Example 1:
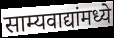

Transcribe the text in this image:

साम्यवाद्यांमध्ये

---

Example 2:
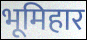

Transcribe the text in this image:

भूमिहार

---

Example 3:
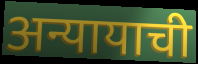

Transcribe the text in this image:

अन्यायाची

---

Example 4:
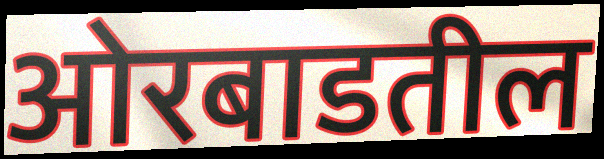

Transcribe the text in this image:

ओरबाडतील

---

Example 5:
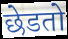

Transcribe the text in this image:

छेडतो